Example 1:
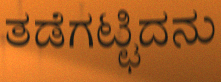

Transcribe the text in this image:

ತಡೆಗಟ್ಟಿದನು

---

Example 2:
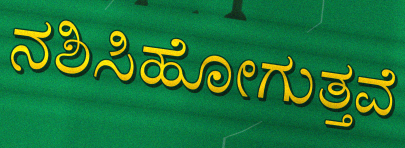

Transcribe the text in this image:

ನಶಿಸಿಹೋಗುತ್ತವೆ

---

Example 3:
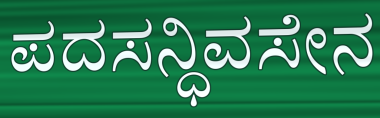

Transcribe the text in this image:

ಪದಸನ್ಧಿವಸೇನ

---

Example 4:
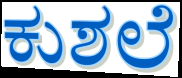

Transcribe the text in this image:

ಕುಶಲೆ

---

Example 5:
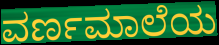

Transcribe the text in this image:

ವರ್ಣಮಾಲೆಯ